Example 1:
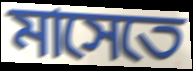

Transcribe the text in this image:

মাসেতে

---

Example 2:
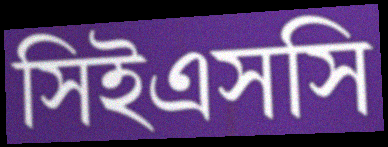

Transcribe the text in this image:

সিইএসসি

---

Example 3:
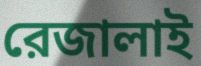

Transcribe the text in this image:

রেজালাই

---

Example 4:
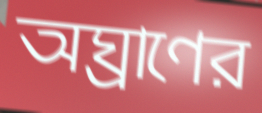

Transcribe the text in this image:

অঘ্রাণের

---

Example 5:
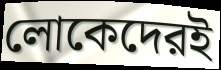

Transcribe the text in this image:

লোকেদেরই